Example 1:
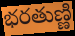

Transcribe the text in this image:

భరతుణ్ణి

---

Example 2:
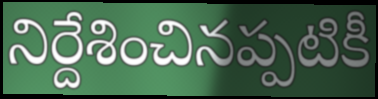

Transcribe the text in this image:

నిర్దేశించినప్పటికీ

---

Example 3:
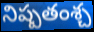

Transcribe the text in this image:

నిష్పతంశ్చ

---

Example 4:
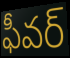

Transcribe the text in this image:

ఫీవర్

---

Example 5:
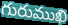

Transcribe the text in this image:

గురుముఖి